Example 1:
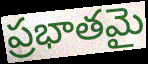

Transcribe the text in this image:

ప్రభాతమై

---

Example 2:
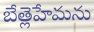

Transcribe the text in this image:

బేత్లెహేమను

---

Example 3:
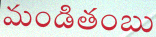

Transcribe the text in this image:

మండితంబు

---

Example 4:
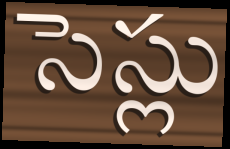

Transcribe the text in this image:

సెస్లు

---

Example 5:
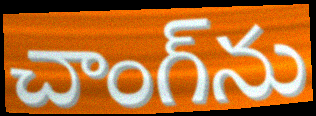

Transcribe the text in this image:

చాంగ్‌ను